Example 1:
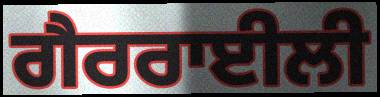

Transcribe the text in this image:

ਗੈਰਰਾਈਲੀ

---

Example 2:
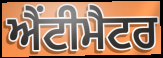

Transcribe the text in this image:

ਐਂਟੀਮੈਟਰ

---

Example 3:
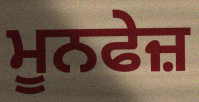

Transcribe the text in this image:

ਮੂਨਫੇਜ਼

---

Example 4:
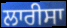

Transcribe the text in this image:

ਲਾਰੀਸਾ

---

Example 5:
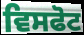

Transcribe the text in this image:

ਵਿਸਫੋਟ